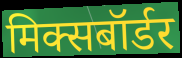
मिक्सबॉर्डर